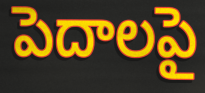
పెదాలపై